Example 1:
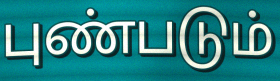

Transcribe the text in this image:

புண்படும்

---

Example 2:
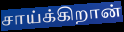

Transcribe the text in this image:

சாய்க்கிறான்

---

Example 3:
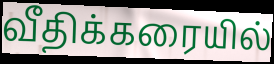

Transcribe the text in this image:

வீதிக்கரையில்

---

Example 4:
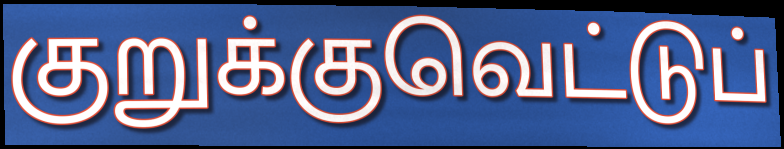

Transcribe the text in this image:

குறுக்குவெட்டுப்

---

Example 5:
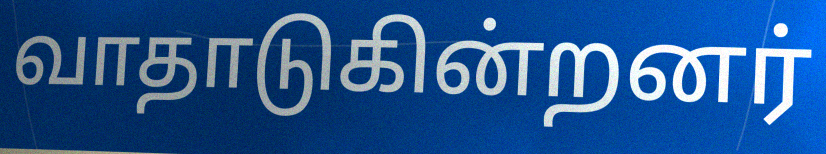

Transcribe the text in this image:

வாதாடுகின்றனர்